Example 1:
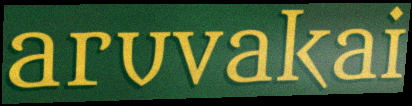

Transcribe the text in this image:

aruvakai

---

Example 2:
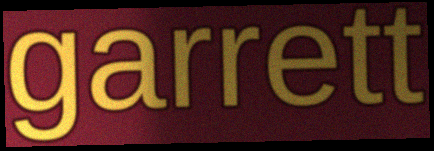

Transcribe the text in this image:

garrett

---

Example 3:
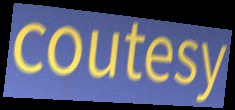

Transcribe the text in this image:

coutesy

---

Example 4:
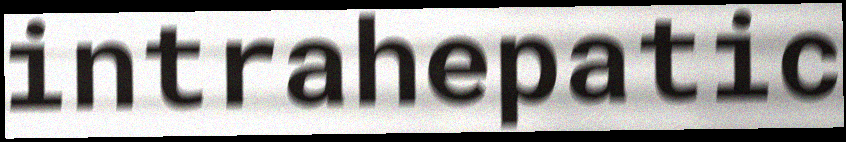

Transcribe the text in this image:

intrahepatic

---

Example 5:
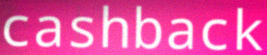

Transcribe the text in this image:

cashback